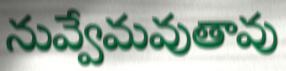
నువ్వేమవుతావు